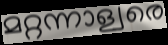
മറ്റന്നാള്വരെ